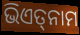
ଭିଏତ୍‌ନାମ